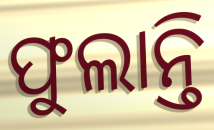
ଫୁଲାନ୍ତି